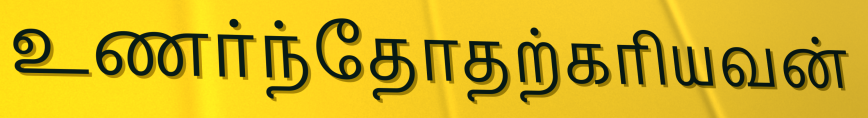
உணர்ந்தோதற்கரியவன்